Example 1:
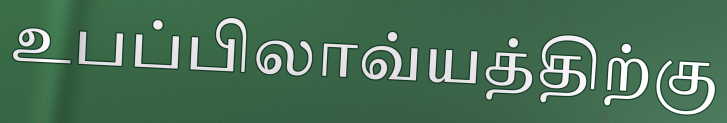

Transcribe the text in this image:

உபப்பிலாவ்யத்திற்கு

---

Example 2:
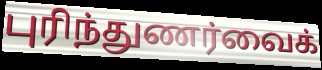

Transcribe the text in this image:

புரிந்துணர்வைக்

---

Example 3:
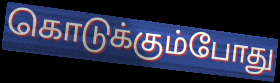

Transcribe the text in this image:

கொடுக்கும்போது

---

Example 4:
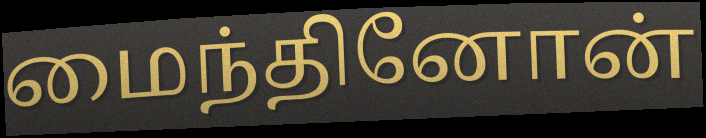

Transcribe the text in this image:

மைந்தினோன்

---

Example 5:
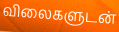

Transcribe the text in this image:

விலைகளுடன்